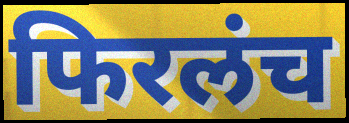
फिरलंच